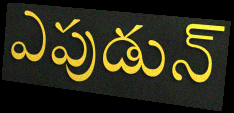
ఎపుడున్